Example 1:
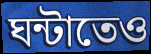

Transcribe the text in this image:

ঘন্টাতেও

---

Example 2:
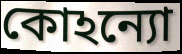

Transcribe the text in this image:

কোঽন্যো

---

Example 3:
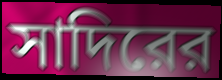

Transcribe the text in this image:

সাদিরের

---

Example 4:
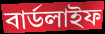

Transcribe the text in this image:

বার্ডলাইফ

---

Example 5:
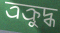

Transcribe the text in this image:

ত্রক্রুদ্ধ